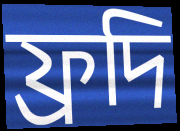
ফ্রদি